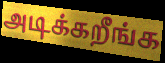
அடிக்கறீங்க